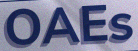
OAEs